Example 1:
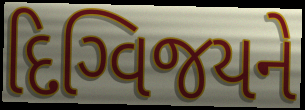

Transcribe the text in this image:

દિગ્વિજયને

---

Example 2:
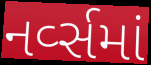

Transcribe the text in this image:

નર્વ્સમાં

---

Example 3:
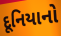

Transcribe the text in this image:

દૂનિયાનો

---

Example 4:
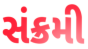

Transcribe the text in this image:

સંક્રમી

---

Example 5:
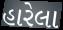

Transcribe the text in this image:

હારેલા